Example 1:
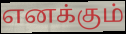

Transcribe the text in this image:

எனக்கும்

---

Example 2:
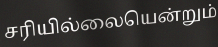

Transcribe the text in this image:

சரியில்லையென்றும்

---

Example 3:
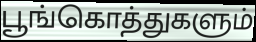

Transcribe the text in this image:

பூங்கொத்துகளும்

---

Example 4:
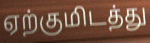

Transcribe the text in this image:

ஏற்குமிடத்து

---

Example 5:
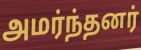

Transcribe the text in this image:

அமர்ந்தனர்